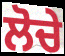
ਲੋਚੇ